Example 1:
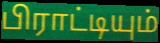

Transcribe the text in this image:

பிராட்டியும்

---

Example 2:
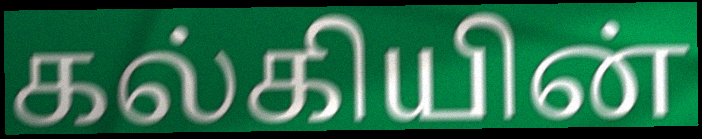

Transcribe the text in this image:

கல்கியின்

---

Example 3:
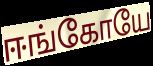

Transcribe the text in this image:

ஈங்கோயே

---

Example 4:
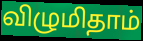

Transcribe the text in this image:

விழுமிதாம்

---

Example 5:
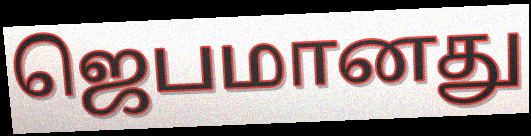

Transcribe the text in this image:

ஜெபமானது